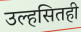
उल्हसितही